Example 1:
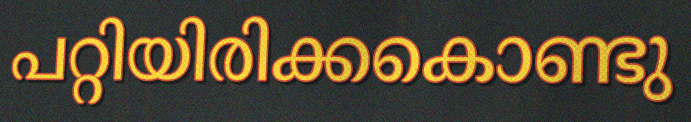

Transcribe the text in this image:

പറ്റിയിരിക്കകൊണ്ടു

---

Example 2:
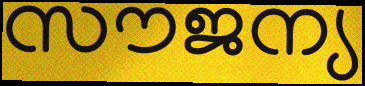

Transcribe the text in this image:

സൗജന്യ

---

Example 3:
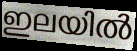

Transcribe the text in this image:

ഇലയിൽ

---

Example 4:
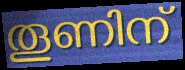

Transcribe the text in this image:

തൂണിന്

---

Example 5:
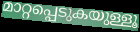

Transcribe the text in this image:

മാറ്റപ്പെടുകയുള്ളൂ